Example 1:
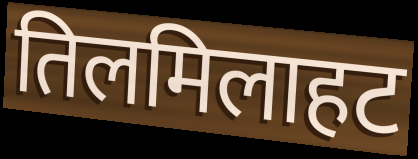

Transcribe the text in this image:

तिलमिलाहट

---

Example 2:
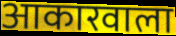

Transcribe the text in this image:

आकारवाला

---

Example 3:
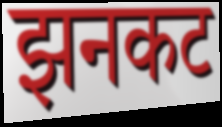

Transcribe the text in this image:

झनकट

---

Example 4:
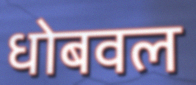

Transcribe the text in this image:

धोबवल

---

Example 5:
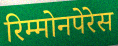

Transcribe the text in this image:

रिम्मोनपेरेस